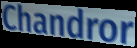
Chandror